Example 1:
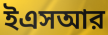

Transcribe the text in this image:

ইএসআর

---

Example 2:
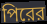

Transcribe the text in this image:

পিরের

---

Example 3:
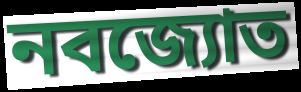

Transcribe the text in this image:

নবজ্যোত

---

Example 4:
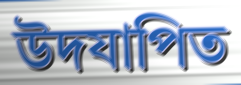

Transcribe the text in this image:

উদযাপিত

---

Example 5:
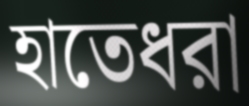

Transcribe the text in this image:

হাতেধরা